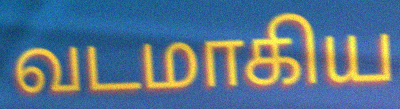
வடமாகிய